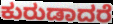
ಕುರುಡಾದರೆ